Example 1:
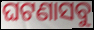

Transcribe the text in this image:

ଘଟଣାସବୁ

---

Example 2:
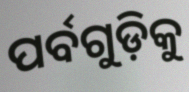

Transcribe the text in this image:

ପର୍ବଗୁଡ଼ିକୁ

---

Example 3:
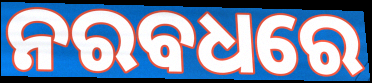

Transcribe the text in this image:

ନରବଧରେ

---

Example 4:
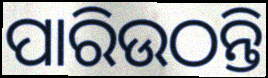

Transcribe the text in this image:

ପାରିଉଠନ୍ତି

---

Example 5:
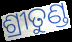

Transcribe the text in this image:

ଶ୍ରୀତୁଣ୍ଡ